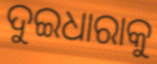
ଦୁଇଧାରାକୁ